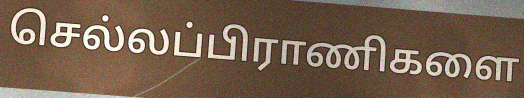
செல்லப்பிராணிகளை